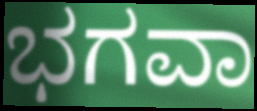
ಭಗವಾ